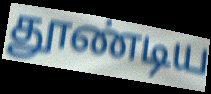
தூண்டிய